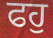
ਫਹੁ